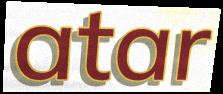
atar